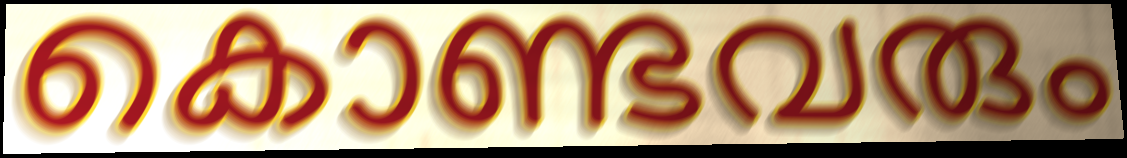
കൊണ്ടവരും